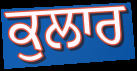
ਕੁਲਾਰ